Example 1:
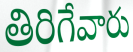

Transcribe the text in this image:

తిరిగేవారు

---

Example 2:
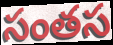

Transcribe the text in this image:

సంతస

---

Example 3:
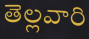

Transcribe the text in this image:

తెల్లవారి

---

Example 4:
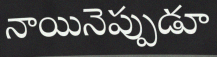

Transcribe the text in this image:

నాయినెప్పుడూ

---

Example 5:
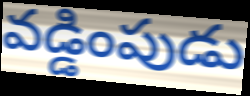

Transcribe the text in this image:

వడ్డింపుడు